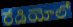
రేడియోలో